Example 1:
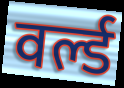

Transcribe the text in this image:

वर्ल्‍ड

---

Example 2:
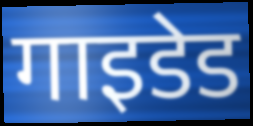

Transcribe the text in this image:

गाइडेड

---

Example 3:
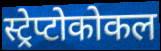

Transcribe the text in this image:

स्ट्रेप्टोकोकल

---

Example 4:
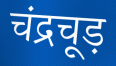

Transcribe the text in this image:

चंद्रचूड़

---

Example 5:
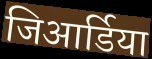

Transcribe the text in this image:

जिआर्डिया